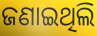
ଜଣାଇଥିଲି